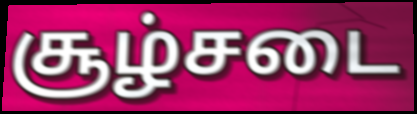
சூழ்சடை